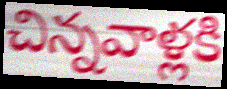
చిన్నవాళ్లకి